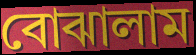
বোঝালাম